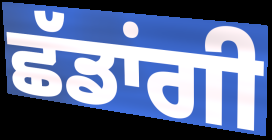
ਛੱਡਾਂਗੀ